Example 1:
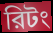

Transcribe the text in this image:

রিটং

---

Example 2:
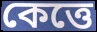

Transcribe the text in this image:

কেত্তে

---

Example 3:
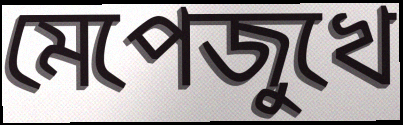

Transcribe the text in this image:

মেপেজুখে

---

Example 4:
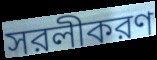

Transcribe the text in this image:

সরলীকরণ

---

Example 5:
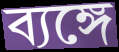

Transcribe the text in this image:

ব্যঙ্গে